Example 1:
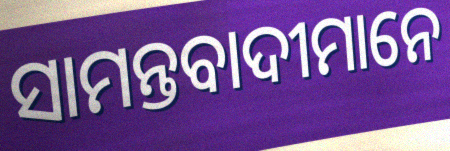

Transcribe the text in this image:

ସାମନ୍ତବାଦୀମାନେ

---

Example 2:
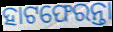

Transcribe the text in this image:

ହାଟଫେରନ୍ତା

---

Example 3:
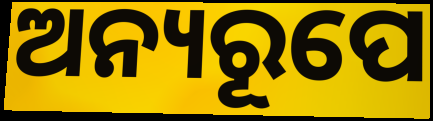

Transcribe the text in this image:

ଅନ୍ୟରୂପେ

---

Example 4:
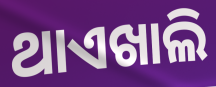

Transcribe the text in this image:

ଥାଏଖାଲି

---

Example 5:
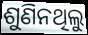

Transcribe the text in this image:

ଶୁଣିନଥିଲୁ